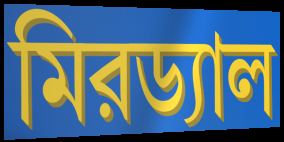
মিরড্যাল